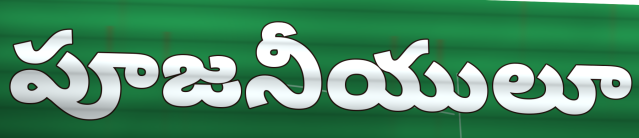
పూజనీయులూ